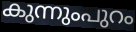
കുന്നുംപുറം